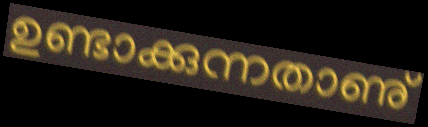
ഉണ്ടാക്കുന്നതാണു്